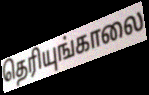
தெரியுங்காலை